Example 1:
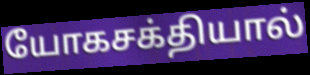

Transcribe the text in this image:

யோகசக்தியால்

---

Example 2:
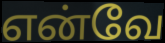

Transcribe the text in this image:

என்வே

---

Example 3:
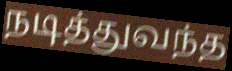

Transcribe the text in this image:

நடித்துவந்த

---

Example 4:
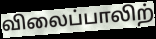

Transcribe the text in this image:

விலைப்பாலிற்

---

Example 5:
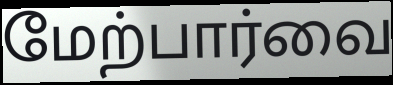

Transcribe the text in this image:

மேற்பார்வை